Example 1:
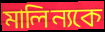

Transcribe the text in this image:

মালিন্যকে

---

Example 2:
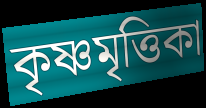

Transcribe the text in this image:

কৃষ্ণমৃত্তিকা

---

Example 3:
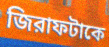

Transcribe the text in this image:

জিরাফটাকে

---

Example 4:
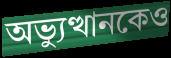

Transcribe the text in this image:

অভ্যুত্থানকেও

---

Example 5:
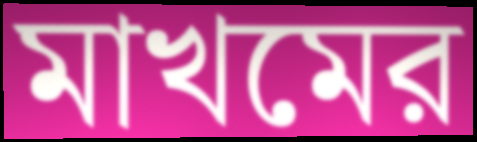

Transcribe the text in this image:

মাখমের